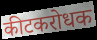
कीटकरोधक